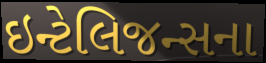
ઇન્ટેલિજન્સના